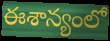
ఈశాన్యంలో